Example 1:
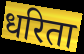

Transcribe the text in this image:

धरिता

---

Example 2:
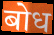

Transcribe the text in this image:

बोध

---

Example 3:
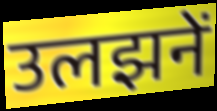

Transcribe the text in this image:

उलझनें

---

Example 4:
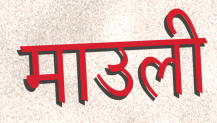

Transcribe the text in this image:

माउली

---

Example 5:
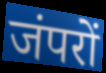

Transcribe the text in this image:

जंपरों